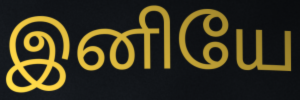
இனியே